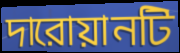
দারোয়ানটি